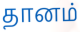
தானம்